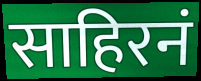
साहिरनं